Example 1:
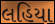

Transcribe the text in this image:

લહિયા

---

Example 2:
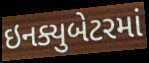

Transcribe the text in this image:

ઇનક્યુબેટરમાં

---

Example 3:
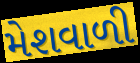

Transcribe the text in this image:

મેશવાળી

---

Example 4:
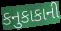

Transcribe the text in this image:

કનુકાકાની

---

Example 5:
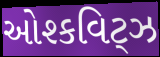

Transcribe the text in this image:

ઓશ્કવિટ્ઝ